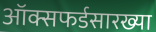
ऑक्सफर्डसारख्या